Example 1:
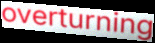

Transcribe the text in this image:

overturning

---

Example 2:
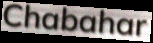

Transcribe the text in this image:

Chabahar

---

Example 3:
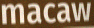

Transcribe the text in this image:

macaw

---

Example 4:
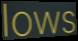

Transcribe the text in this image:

lows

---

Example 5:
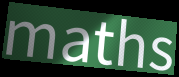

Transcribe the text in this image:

maths